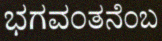
ಭಗವಂತನೆಂಬ